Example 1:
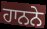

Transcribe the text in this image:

ਹਾਨਨੇ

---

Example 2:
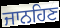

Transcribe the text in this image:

ਜਾਨਹਿਣ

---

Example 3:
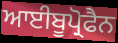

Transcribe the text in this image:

ਆਈਬੂਪ੍ਰੋਫੈਨ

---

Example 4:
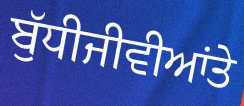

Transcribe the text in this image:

ਬੁੱਧੀਜੀਵੀਆਂਤੇ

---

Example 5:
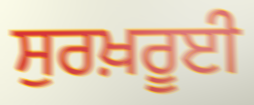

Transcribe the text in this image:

ਸੁਰਖ਼ਰੂਈ